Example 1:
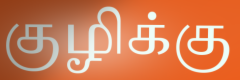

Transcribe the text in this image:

குழிக்கு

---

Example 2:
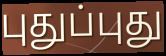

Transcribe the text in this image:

புதுப்புது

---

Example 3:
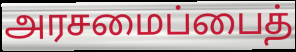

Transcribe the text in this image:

அரசமைப்பைத்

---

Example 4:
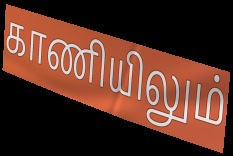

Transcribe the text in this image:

காணியிலும்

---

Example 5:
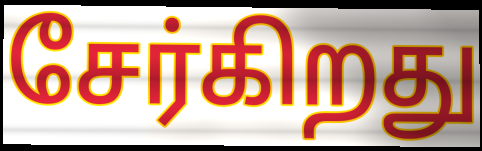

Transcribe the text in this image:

சேர்கிறது